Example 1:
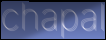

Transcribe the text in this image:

chapal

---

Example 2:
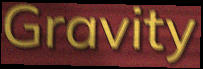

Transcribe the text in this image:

Gravity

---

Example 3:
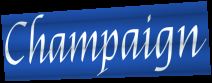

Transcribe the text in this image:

Champaign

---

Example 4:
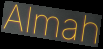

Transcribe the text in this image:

Almah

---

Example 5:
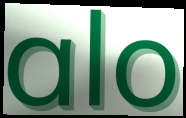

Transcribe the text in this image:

alo